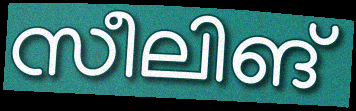
സീലിങ്